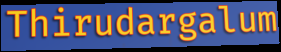
Thirudargalum